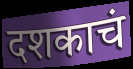
दशकाचं